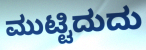
ಮುಟ್ಟಿದುದು